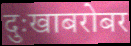
दुःखाबरोबर